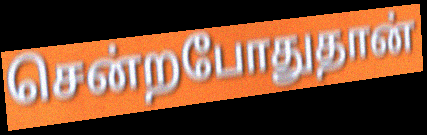
சென்றபோதுதான்